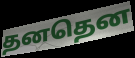
தனதென